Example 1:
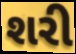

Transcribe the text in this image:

શરી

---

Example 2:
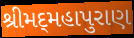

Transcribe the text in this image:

શ્રીમદ્‌મહાપુરાણ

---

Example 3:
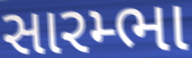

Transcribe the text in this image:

સારમ્ભા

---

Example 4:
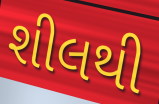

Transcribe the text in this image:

શીલથી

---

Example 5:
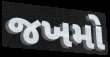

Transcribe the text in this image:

જખમો